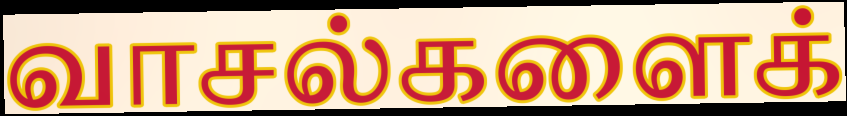
வாசல்களைக்